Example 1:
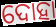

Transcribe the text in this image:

ଦୋହା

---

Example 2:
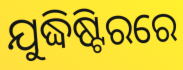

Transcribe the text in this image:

ଯୁଦ୍ଧିଷ୍ଟିରରେ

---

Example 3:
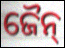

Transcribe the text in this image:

ଜୈନ୍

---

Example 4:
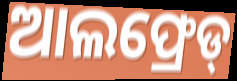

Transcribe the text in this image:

ଆଲଫ୍ରେଡ୍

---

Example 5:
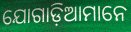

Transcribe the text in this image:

ଯୋଗାଡ଼ିଆମାନେ